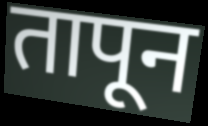
तापून